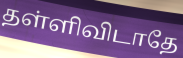
தள்ளிவிடாதே